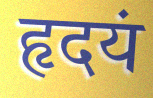
हृदयं